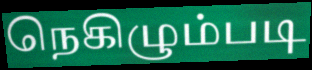
நெகிழும்படி